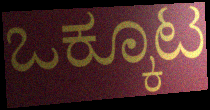
ಒಕ್ಕೂಟ